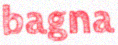
bagna